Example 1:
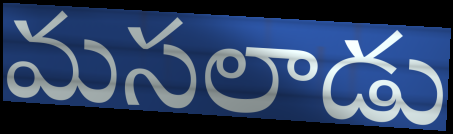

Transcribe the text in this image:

మసలాడు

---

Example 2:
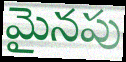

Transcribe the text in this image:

మైనపు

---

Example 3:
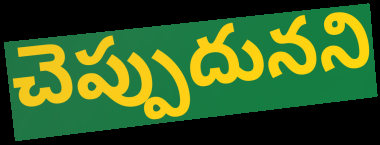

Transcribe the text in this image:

చెప్పుదునని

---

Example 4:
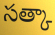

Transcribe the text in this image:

సత్కా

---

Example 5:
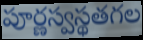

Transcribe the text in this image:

పూర్ణస్వస్థతగల